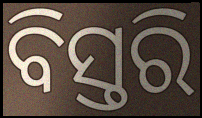
ବିସ୍ତରି